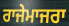
ਰਾਜੇਮਾਜਰਾ